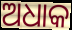
ଅଧାକ